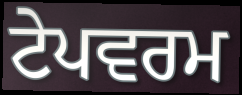
ਟੇਪਵਰਮ